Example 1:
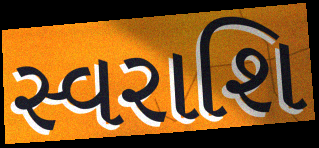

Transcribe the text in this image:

સ્વરાશિ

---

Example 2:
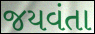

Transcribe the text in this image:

જયવંતા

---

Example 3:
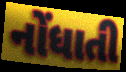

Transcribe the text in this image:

નોંધાતી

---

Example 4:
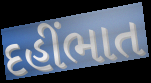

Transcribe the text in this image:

દહીંભાત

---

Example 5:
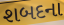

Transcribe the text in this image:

શબદના